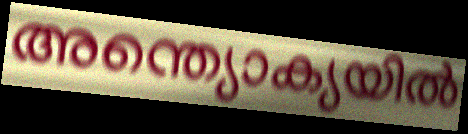
അന്ത്യൊക്യയിൽ